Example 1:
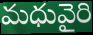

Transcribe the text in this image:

మధువైరి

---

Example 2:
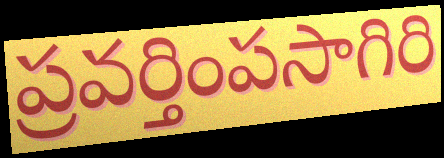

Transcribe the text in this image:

ప్రవర్తింపసాగిరి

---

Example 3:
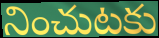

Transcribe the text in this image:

నించుటకు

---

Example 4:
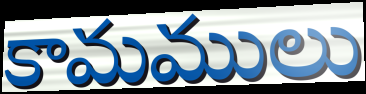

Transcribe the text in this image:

కామములు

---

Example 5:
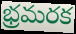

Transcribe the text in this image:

భ్రమరక